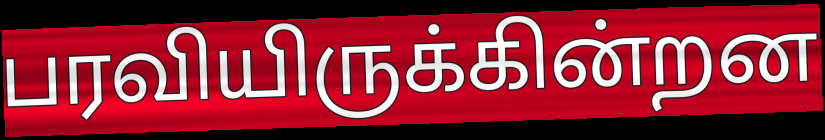
பரவியிருக்கின்றன